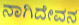
ನಾಗಿದೇವನ